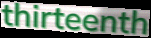
thirteenth